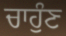
ਚਾਹੁੰਣ